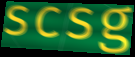
scsg